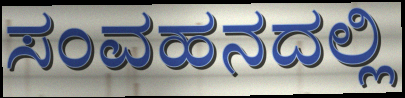
ಸಂವಹನದಲ್ಲಿ